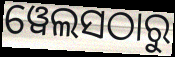
ୱେଲସଠାରୁ